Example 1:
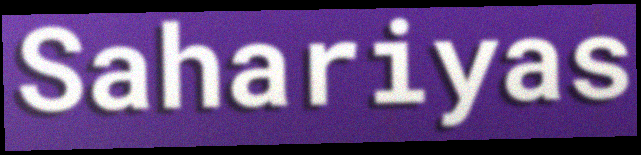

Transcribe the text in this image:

Sahariyas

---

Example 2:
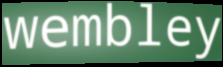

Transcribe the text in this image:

wembley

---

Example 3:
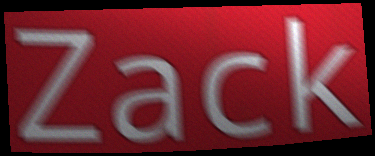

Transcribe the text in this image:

Zack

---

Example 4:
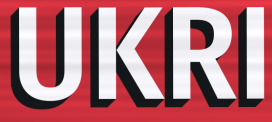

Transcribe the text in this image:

UKRI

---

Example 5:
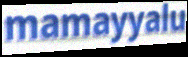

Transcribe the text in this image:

mamayyalu